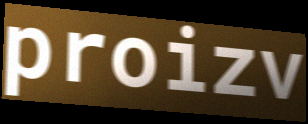
proizv